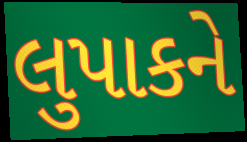
લુપાકને